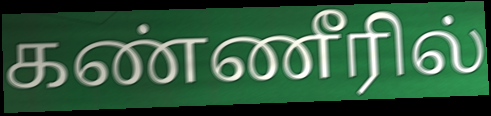
கண்ணீரில்